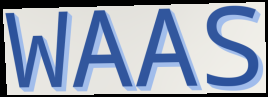
WAAS